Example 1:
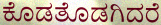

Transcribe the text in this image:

ಕೊಡತೊಡಗಿದರೆ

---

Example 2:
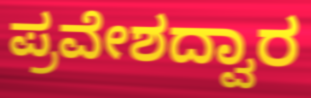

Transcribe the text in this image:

ಪ್ರವೇಶದ್ವಾರ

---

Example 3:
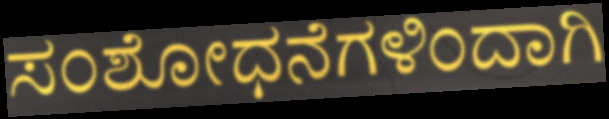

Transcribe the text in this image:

ಸಂಶೋಧನೆಗಳಿಂದಾಗಿ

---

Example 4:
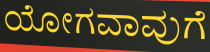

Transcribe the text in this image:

ಯೋಗವಾವುಗೆ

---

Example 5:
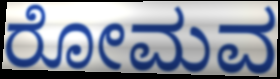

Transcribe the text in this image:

ರೋಮವ